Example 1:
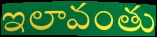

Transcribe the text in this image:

ఇలావంతు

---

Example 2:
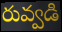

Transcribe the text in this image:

రువ్వడి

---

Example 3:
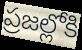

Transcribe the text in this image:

ప్రజల్లోకి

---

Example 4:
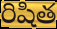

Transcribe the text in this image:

రిషిత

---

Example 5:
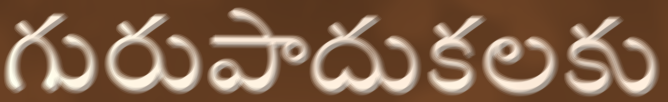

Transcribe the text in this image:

గురుపాదుకలకు